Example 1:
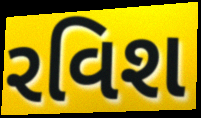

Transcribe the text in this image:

રવિશ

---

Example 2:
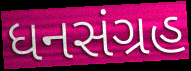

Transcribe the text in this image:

ધનસંગ્રહ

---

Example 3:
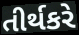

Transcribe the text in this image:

તીર્થકરે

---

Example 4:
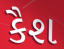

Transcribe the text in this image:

કૈશ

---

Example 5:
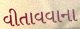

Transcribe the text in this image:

વીતાવવાના